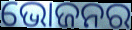
ଭୋଜନର